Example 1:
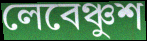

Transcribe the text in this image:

লেবেঞ্চুশ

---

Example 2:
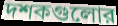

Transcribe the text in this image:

দশকগুলোর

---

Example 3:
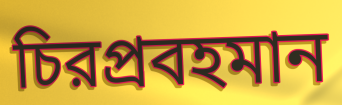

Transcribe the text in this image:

চিরপ্রবহমান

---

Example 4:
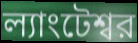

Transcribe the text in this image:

ল্যাংটেশ্বর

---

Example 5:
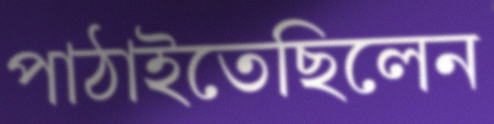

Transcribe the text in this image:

পাঠাইতেছিলেন